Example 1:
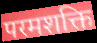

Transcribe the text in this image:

परमशक्ति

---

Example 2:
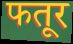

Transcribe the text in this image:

फतूर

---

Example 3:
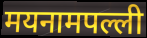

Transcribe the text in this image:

मयनामपल्ली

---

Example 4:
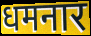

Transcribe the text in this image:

धमनार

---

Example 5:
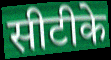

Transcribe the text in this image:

सीटीके